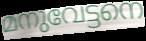
മനുവേട്ടനെ